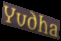
Yudha